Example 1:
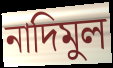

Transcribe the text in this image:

নাদিমুল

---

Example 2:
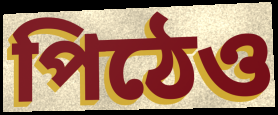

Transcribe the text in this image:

পিঠেও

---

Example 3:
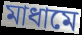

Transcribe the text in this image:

মাধামে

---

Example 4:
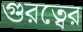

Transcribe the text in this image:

গুরত্বের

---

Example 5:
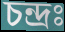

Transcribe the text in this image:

চন্দ্রঃ